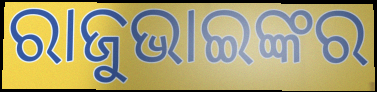
ରାଜୁଭାଇଙ୍କର